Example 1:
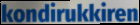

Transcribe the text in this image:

kondirukkiren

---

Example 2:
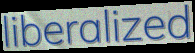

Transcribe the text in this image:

liberalized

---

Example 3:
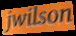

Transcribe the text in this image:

jwilson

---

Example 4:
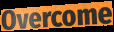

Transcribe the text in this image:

Overcome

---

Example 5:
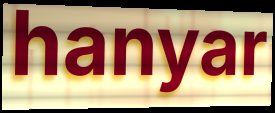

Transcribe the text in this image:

hanyar